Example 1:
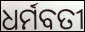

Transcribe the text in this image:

ଧର୍ମବତୀ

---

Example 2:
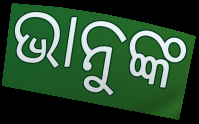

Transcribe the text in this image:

ଭାନୁଙ୍କ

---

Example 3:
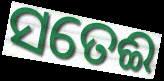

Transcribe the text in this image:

ସତେଈ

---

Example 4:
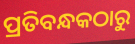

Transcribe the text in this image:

ପ୍ରତିବନ୍ଧକଠାରୁ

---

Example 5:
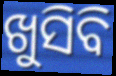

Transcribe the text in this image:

ଖୁସିବି